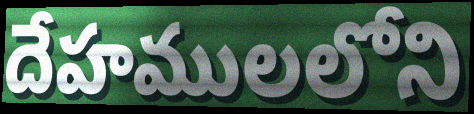
దేహములలోని